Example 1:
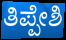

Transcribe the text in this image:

ತಿಪ್ಪೇಶಿ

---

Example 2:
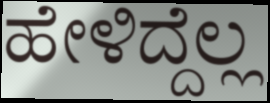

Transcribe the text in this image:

ಹೇಳಿದ್ದೆಲ್ಲ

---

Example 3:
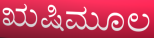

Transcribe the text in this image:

ಋಷಿಮೂಲ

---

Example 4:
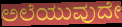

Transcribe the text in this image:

ಅಲೆಯುವುದೇ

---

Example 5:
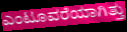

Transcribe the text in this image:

ಎಂಟೂವರೆಯಾಗಿತ್ತು